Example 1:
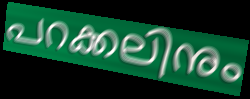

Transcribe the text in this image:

പറക്കലിനും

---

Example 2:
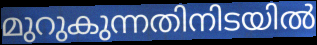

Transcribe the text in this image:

മുറുകുന്നതിനിടയിൽ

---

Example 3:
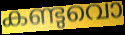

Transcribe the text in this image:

കണ്ടുവൊ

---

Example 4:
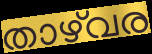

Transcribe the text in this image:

താഴ്‌വര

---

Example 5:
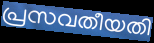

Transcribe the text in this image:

പ്രസവതീയതി